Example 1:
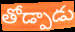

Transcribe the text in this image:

తోడ్పాడు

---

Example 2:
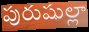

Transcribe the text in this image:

పురుషుల్లా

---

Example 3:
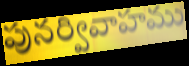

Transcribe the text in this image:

పునర్వివాహము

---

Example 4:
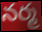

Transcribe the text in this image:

నర్మ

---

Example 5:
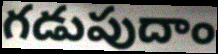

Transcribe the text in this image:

గడుపుదాం